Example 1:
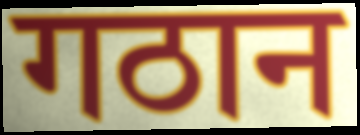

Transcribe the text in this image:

गठान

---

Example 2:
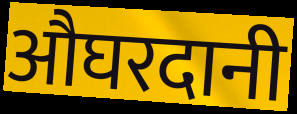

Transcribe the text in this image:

औघरदानी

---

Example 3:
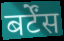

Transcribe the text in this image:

बर्टेंस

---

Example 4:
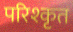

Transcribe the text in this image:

परिश्कृत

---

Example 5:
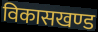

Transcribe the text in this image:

विकासखण्‍ड